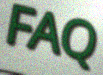
FAQ